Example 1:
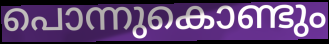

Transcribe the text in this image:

പൊന്നുകൊണ്ടും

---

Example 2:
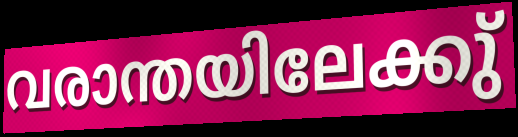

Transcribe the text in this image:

വരാന്തയിലേക്കു്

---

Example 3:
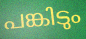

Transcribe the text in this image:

പങ്കിടും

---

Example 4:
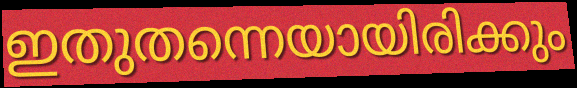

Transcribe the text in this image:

ഇതുതന്നെയായിരിക്കും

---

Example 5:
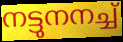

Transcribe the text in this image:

നട്ടുനനച്ച്